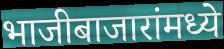
भाजीबाजारांमध्ये